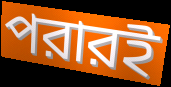
পরারই